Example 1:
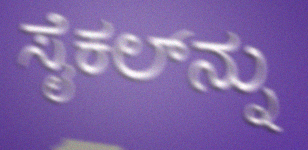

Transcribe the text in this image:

ಸೈಕಲ್‌ನ್ನು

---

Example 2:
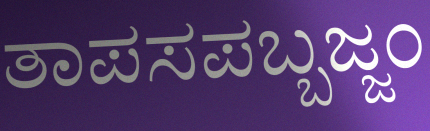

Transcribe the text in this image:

ತಾಪಸಪಬ್ಬಜ್ಜಂ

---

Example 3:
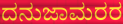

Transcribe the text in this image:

ದನುಜಾಮರರ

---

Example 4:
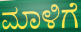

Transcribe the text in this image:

ಮಾಳಿಗೆ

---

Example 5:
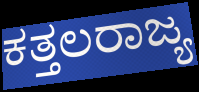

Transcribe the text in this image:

ಕತ್ತಲರಾಜ್ಯ